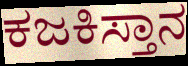
ಕಜಕಿಸ್ತಾನ